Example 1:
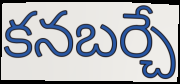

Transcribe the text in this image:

కనబర్చే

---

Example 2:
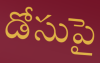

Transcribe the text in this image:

డోసుపై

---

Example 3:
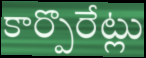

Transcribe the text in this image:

కార్పొరేట్లు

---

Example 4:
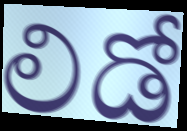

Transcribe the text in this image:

లిడో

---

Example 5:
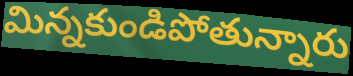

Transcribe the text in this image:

మిన్నకుండిపోతున్నారు